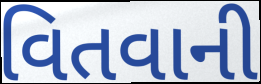
વિતવાની